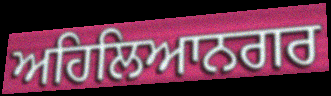
ਅਹਿਲਿਆਨਗਰ